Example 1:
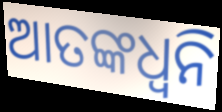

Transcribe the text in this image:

ଆତଙ୍କଧ୍ଵନି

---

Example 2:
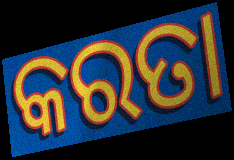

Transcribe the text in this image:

କରତା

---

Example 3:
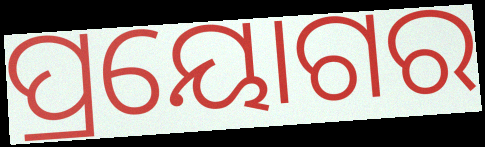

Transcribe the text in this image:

ପ୍ରୟୋଗର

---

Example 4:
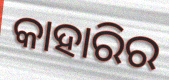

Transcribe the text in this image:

କାହାରିର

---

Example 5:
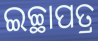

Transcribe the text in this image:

ଇଚ୍ଛାପତ୍ର